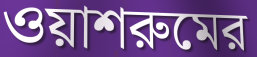
ওয়াশরুমের